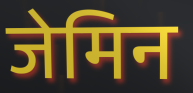
जेमिन